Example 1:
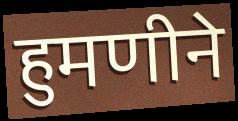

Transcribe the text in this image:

हुमणीने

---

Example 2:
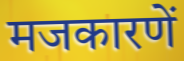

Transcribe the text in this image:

मजकारणें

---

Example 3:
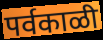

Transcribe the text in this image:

पर्वकाळी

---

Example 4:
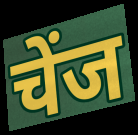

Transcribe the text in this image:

चेंज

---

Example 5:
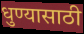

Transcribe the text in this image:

धुण्यासाठी